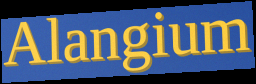
Alangium